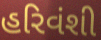
હરિવંશી